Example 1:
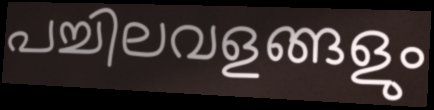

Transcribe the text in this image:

പച്ചിലവളങ്ങളും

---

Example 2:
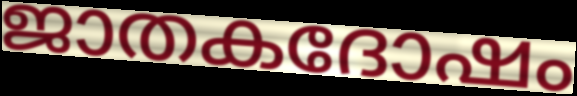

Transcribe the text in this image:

ജാതകദോഷം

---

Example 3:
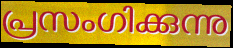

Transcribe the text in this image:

പ്രസംഗിക്കുന്നു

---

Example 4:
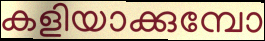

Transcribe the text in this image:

കളിയാക്കുമ്പോ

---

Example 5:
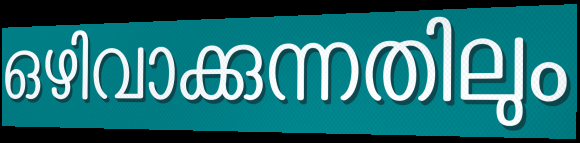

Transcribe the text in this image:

ഒഴിവാക്കുന്നതിലും